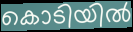
കൊടിയിൽ